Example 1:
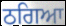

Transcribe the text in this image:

ਠਗਿਆ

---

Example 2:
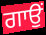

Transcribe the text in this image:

ਗਾਉਂ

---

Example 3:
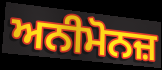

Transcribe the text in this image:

ਅਨੀਮੋਨਜ਼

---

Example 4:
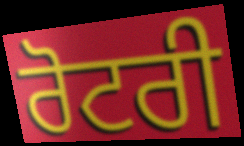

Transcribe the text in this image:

ਰੋਟਰੀ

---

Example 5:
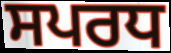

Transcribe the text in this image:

ਸਪਰਧ